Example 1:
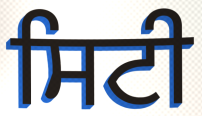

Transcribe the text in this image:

ਸਿਟੀ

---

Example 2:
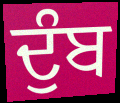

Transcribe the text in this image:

ਦੁੰਬ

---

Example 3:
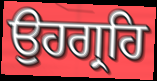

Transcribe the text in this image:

ਉਹਗ੍ਰਹਿ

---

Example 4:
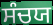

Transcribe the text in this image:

ਸੰਚਯ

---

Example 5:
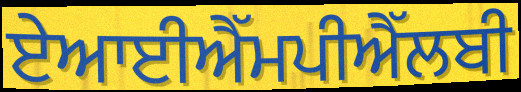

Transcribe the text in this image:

ਏਆਈਐੱਮਪੀਐੱਲਬੀ